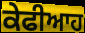
ਕੇਫੀਆਹ